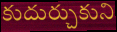
కుదుర్చుకుని